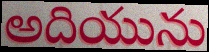
అదియును